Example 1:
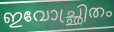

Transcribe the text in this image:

ഇവോച്ഛ്രിതം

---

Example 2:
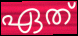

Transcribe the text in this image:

ഏത്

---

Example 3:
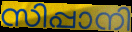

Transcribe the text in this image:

സിപ്പാനി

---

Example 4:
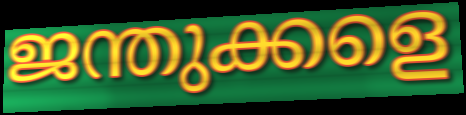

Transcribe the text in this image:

ജന്തുക്കളെ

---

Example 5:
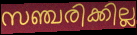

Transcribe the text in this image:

സഞ്ചരിക്കില്ല